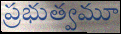
ప్రభుత్వమూ